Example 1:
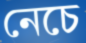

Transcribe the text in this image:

নেচে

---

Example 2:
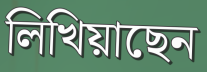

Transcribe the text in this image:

লিখিয়াছেন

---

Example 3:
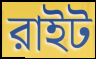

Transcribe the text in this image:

রাইট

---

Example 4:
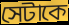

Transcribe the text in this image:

সেটাকে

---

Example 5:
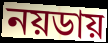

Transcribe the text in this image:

নয়ডায়